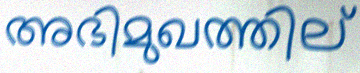
അഭിമുഖത്തില്